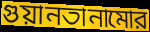
গুয়ানতানামোর